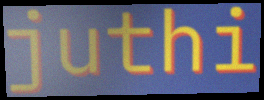
juthi